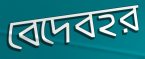
বেদেবহর